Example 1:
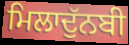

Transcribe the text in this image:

ਮਿਲਾਦੁੱਨਬੀ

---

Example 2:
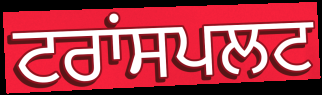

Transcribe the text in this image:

ਟਰਾਂਸਪਲਟ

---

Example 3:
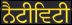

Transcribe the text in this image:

ਨੈਟੀਵਿਟੀ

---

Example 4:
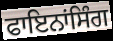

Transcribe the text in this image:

ਫਾਇਨਾਂਸਿੰਗ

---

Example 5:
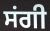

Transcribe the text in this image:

ਸਂਗੀ